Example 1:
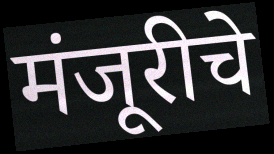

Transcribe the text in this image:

मंजूरीचे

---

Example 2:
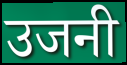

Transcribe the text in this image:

उजनी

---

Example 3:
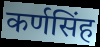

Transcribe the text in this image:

कर्णसिंह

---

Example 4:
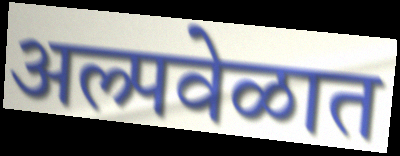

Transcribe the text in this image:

अल्पवेळात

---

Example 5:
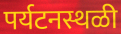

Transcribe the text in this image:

पर्यटनस्थळी